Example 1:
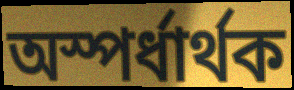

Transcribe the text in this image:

অস্পৰ্ধাৰ্থক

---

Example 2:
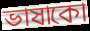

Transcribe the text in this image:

ভাষাকো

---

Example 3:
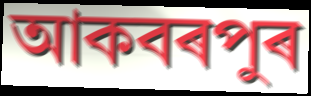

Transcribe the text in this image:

আকবৰপুৰ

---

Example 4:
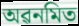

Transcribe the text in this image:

অৱনমিত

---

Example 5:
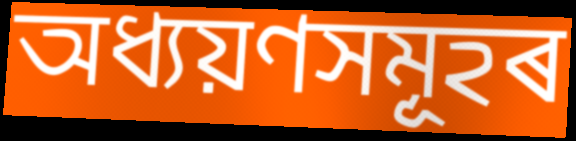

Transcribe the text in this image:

অধ্যয়ণসমূহৰ